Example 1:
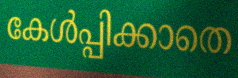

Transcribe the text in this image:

കേൾപ്പിക്കാതെ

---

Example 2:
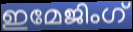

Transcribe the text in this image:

ഇമേജിംഗ്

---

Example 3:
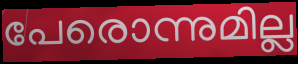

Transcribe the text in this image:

പേരൊന്നുമില്ല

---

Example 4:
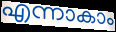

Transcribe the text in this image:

എന്നാകാം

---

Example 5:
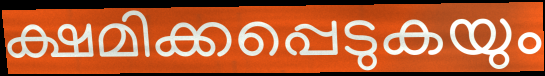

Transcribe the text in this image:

ക്ഷമിക്കപ്പെടുകയും